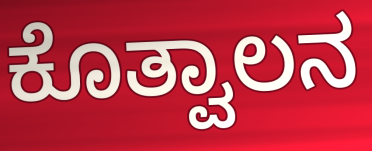
ಕೊತ್ವಾಲನ